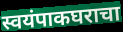
स्वयंपाकघराचा